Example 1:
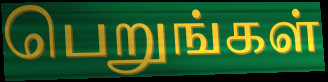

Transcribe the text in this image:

பெறுங்கள்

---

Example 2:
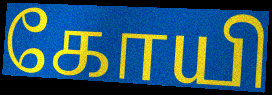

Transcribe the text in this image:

கோயி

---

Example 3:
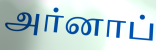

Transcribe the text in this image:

அர்னாப்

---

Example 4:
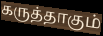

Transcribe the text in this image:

கருத்தாகும்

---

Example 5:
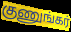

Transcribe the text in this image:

குணுங்கர்